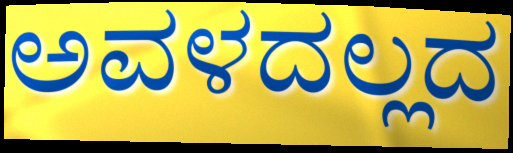
ಅವಳದಲ್ಲದ